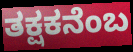
ತಕ್ಷಕನೆಂಬ